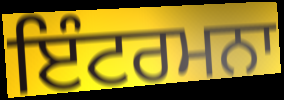
ਇੰਟਰਮਨਾ